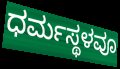
ಧರ್ಮಸ್ಥಳವೂ